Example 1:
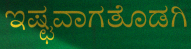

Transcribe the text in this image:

ಇಷ್ಟವಾಗತೊಡಗಿ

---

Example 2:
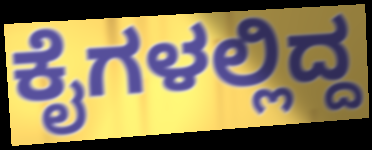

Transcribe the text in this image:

ಕೈಗಳಲ್ಲಿದ್ದ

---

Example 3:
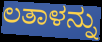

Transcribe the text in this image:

ಲತಾಳನ್ನು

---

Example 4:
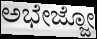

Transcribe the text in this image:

ಅಭೇಜ್ಜೋ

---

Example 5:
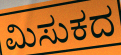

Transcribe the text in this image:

ಮಿಸುಕದ